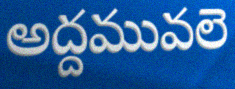
అద్దమువలె